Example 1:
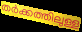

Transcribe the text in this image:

തർക്കത്തിലുള്ള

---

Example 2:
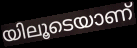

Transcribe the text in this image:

യിലൂടെയാണ്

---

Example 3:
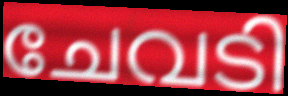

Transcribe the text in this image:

ചേവടി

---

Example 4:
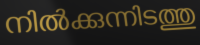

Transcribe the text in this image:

നിൽക്കുന്നിടത്തു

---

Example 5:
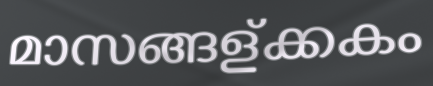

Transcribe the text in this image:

മാസങ്ങള്ക്കകം